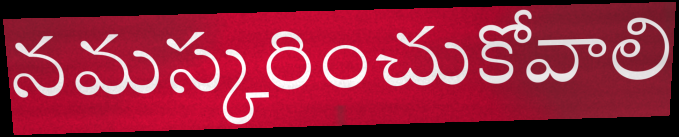
నమస్కరించుకోవాలి